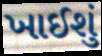
ખાઈશું